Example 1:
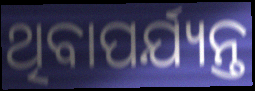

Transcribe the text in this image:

ଥିବାପର୍ଯ୍ୟନ୍ତ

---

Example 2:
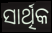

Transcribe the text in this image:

ସାର୍ଥିକ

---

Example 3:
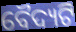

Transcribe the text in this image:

ବୈଦ୍ୟଟି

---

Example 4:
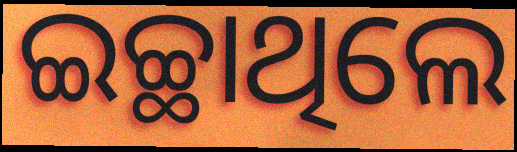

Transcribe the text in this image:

ଇଚ୍ଛାଥିଲେ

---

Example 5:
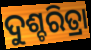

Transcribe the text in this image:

ଦୁଶ୍ଚରିତ୍ରା